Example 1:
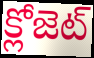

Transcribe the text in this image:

క్లోజెట్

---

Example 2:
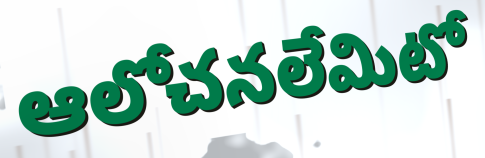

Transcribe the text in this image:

ఆలోచనలేమిటో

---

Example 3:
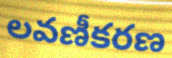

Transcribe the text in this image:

లవణీకరణ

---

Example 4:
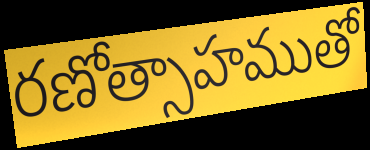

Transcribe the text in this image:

రణోత్సాహముతో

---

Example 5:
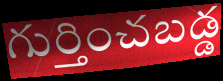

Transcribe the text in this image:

గుర్తించబడ్డ